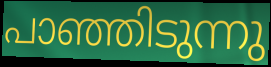
പാഞ്ഞിടുന്നു